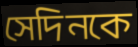
সেদিনকে